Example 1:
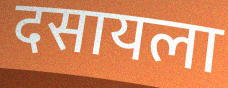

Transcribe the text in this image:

दसायला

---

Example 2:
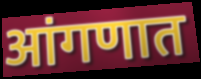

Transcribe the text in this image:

आंगणात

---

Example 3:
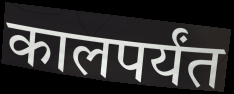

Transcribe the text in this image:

कालपर्यंत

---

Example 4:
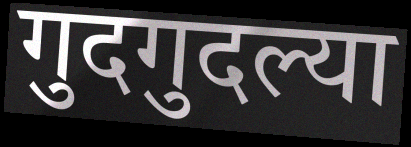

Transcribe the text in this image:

गुदगुदल्या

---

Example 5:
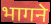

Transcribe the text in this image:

भागने